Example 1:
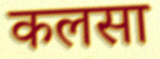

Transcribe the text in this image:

कलसा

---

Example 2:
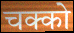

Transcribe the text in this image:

चक्को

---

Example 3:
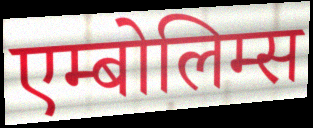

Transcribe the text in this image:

एम्बोलिम्स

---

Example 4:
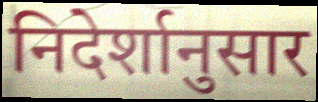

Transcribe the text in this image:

निदेर्शानुसार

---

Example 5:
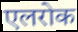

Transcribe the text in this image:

एलरोक